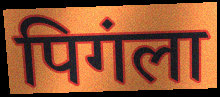
पिगंला